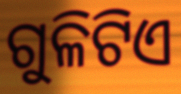
ଗୁଳିଟିଏ